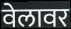
वेलावर